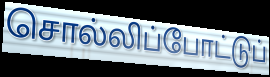
சொல்லிப்போட்டுப்